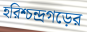
হরিশ্চন্দ্রগড়ের